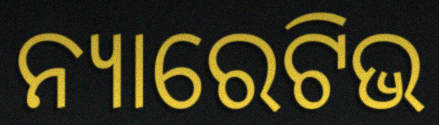
ନ୍ୟାରେଟିଭ